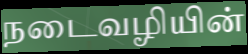
நடைவழியின்